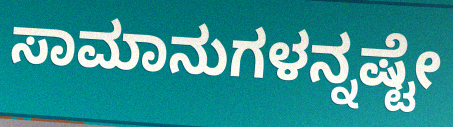
ಸಾಮಾನುಗಳನ್ನಷ್ಟೇ